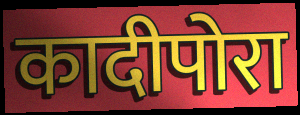
कादीपोरा